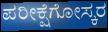
ಪರೀಕ್ಷೆಗೋಸ್ಕರ